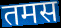
तमस